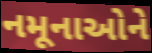
નમૂનાઓને